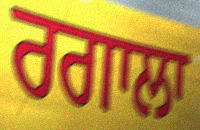
ਰਗਾਲਾ